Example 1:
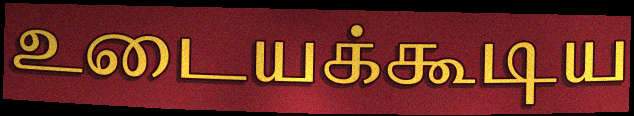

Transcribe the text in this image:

உடையக்கூடிய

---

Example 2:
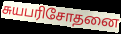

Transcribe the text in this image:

சுயபரிசோதனை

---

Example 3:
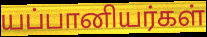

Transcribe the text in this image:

யப்பானியர்கள்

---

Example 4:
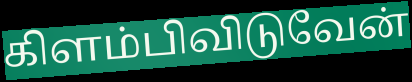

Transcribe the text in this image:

கிளம்பிவிடுவேன்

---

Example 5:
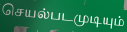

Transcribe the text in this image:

செயல்படமுடியும்